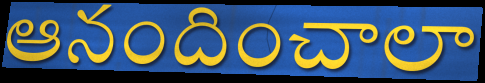
ఆనందించాలా